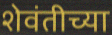
शेवंतीच्या